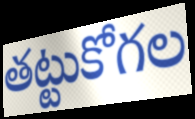
తట్టుకోగల